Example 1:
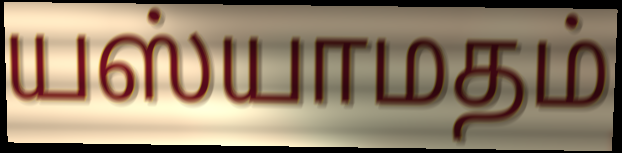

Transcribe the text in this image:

யஸ்யாமதம்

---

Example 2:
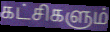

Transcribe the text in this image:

கட்சிகளும்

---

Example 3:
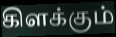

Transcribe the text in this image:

கிளக்கும்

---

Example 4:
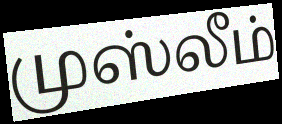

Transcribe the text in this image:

முஸ்லீம்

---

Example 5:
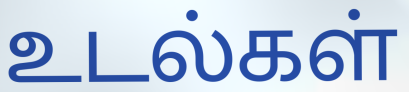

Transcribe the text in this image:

உடல்கள்